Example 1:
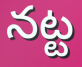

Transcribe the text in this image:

నట్ట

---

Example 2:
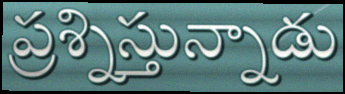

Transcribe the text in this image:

ప్రశ్నిస్తున్నాడు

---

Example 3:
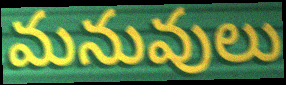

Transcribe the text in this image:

మనువులు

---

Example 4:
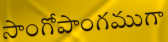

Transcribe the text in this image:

సాంగోపాంగముగా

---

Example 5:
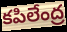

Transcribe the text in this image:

కపిలేంద్ర